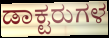
ಡಾಕ್ಟರುಗಳ